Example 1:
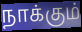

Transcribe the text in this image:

நாக்கும்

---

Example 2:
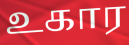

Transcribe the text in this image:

உகார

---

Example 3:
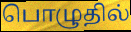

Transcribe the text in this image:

பொழுதில்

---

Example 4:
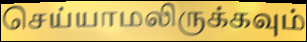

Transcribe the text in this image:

செய்யாமலிருக்கவும்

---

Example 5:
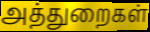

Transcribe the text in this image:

அத்துறைகள்